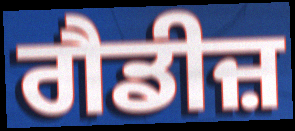
ਗੈਡੀਜ਼